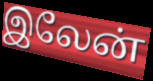
இலேன்